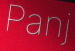
Panj